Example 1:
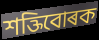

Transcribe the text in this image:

শক্তিবোৰক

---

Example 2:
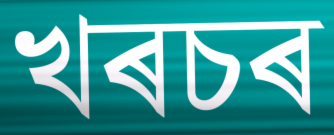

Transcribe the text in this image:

খৰচৰ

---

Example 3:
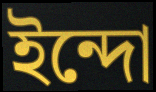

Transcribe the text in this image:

ইন্দো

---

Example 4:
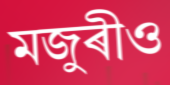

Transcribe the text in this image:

মজুৰীও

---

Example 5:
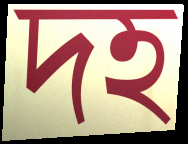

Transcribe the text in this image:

দহ